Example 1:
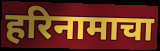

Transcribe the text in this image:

हरिनामाचा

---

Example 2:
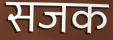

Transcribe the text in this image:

सजक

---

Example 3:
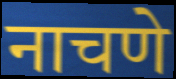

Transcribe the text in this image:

नाचणे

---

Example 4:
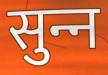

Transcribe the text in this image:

सुन्‍न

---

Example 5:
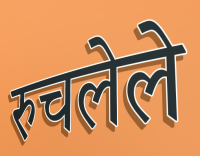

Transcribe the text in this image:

रुचलेले